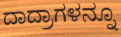
ದಾದ್ರಾಗಳನ್ನೂ